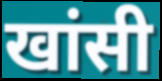
खांसी